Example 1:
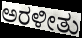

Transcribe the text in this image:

ಅರಳೀತು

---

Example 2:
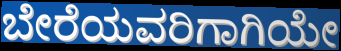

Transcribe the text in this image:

ಬೇರೆಯವರಿಗಾಗಿಯೇ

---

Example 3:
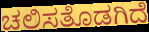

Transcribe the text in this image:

ಚಲಿಸತೊಡಗಿದೆ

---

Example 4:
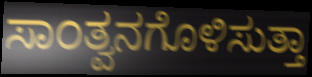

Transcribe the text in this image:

ಸಾಂತ್ವನಗೊಳಿಸುತ್ತಾ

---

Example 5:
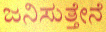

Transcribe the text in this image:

ಜನಿಸುತ್ತೇನೆ